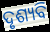
ଦୃଶ୍ୟବି